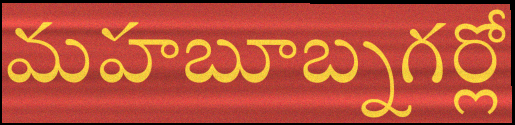
మహబూబ్నగర్లో